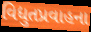
વિદ્યુતપ્રવાહના